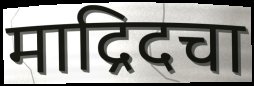
माद्रिदचा